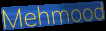
Mehmood